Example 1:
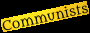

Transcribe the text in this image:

Communists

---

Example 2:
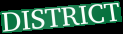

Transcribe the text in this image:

DISTRICT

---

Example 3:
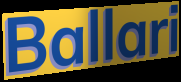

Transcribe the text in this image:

Ballari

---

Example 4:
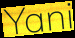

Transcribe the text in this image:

Yani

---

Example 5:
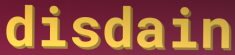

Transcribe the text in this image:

disdain